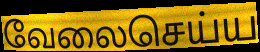
வேலைசெய்ய